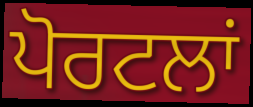
ਪੋਰਟਲਾਂ